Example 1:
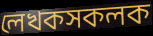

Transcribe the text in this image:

লেখকসকলক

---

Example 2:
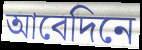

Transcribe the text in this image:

আবেদিনে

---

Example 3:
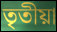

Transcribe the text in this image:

তৃতীয়া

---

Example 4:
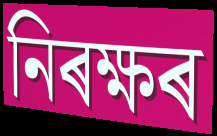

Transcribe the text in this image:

নিৰক্ষৰ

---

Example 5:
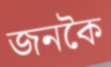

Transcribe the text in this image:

জনকৈ